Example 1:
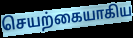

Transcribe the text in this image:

செயற்கையாகிய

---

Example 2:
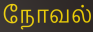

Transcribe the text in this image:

நோவல்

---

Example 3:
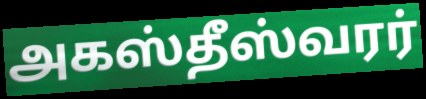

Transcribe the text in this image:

அகஸ்தீஸ்வரர்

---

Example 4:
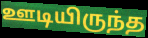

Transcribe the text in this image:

ஊடியிருந்த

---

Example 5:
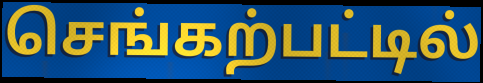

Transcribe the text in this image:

செங்கற்பட்டில்